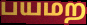
பயமற